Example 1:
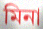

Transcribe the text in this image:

মিনা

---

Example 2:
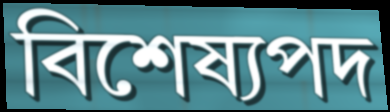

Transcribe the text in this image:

বিশেষ্যপদ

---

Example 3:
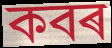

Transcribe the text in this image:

কবৰ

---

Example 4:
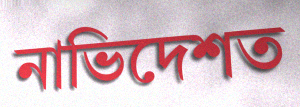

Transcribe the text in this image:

নাভিদেশত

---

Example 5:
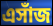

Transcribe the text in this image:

এসাঁজ